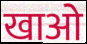
खाओ